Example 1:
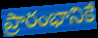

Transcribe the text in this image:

ప్రారంభానికే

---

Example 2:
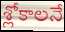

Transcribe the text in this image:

శ్లోకాలనే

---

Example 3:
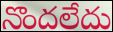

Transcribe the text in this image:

నొందలేదు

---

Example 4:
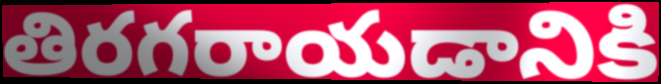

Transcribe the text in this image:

తిరగరాయడానికి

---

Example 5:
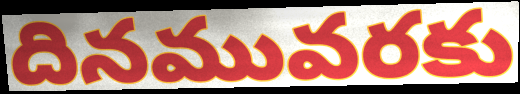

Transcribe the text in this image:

దినమువరకు